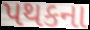
પથકના